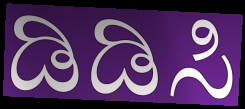
ಡಿಡಿಸಿ